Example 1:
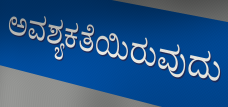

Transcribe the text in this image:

ಅವಶ್ಯಕತೆಯಿರುವುದು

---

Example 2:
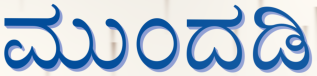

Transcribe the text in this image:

ಮುಂದಡಿ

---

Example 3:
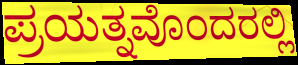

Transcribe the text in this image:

ಪ್ರಯತ್ನವೊಂದರಲ್ಲಿ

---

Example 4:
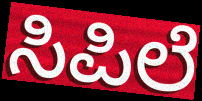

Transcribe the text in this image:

ಸಿಪಿಲೆ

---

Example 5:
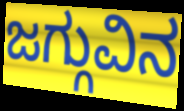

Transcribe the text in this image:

ಜಗ್ಗುವಿನ